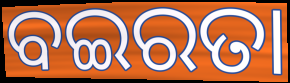
ବଇରତା